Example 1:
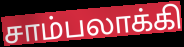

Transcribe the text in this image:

சாம்பலாக்கி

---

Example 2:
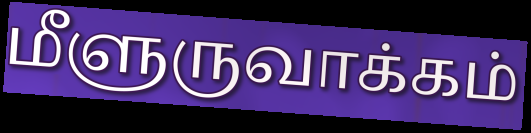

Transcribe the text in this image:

மீளுருவாக்கம்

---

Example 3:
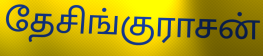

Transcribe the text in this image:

தேசிங்குராசன்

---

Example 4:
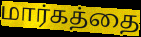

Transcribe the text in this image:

மார்கத்தை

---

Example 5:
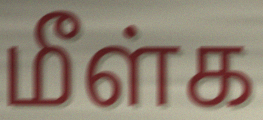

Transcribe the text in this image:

மீள்க